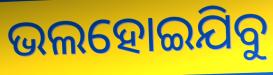
ଭଲହୋଇଯିବୁ